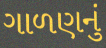
ગાળણનું